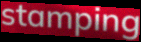
stamping